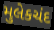
મુલેકચંદ